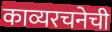
काव्यरचनेची